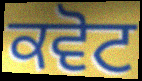
ਕਵੋਟ